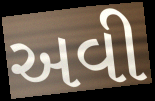
અવી